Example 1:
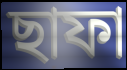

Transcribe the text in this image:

ছাফা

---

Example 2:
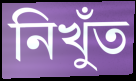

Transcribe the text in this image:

নিখুঁত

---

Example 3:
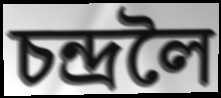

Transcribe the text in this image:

চন্দ্ৰলৈ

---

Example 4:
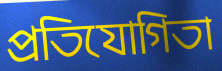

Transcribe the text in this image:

প্ৰতিযোগিতা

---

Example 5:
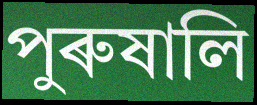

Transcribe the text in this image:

পুৰুষালি